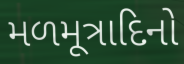
મળમૂત્રાદિનો